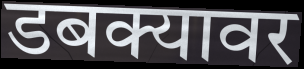
डबक्यावर